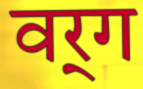
वर्ग